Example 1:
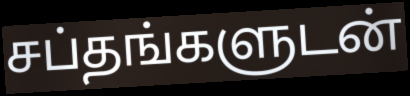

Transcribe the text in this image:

சப்தங்களுடன்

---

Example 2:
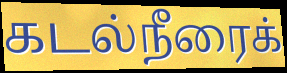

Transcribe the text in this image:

கடல்நீரைக்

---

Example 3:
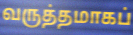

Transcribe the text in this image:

வருத்தமாகப்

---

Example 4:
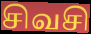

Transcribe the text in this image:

சிவசி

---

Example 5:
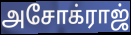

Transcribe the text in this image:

அசோக்ராஜ்